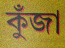
কুঁজা